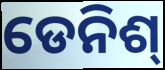
ଡେନିଶ୍